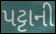
પટ્ટાની